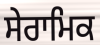
ਸੇਰਾਮਿਕ